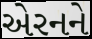
એરનને